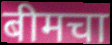
बीमचा